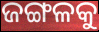
ଜଙ୍ଗଳକୁ